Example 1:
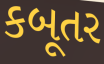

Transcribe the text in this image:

કબૂતર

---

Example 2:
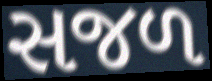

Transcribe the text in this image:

સજળ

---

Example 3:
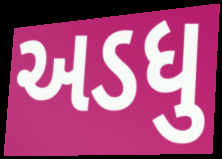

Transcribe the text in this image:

અડધુ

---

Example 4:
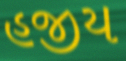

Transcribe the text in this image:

હજીય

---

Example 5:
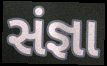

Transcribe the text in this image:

સંજ્ઞા